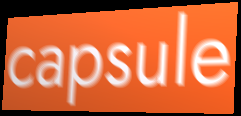
capsule